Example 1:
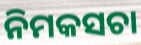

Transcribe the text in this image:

ନିମକସଚା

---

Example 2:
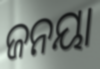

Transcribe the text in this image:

ଜନୟା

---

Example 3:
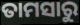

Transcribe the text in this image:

ତାମସାରୁ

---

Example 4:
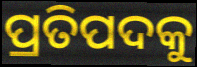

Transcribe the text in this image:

ପ୍ରତିପଦକୁ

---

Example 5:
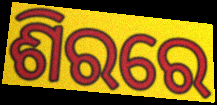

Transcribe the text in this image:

ଶିରରେ